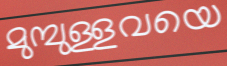
മുമ്പുള്ളവയെ